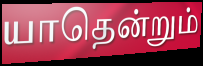
யாதென்றும்